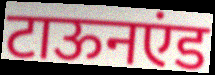
टाऊनएंड